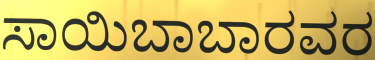
ಸಾಯಿಬಾಬಾರವರ